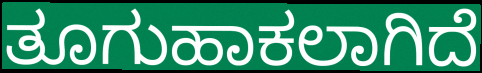
ತೂಗುಹಾಕಲಾಗಿದೆ